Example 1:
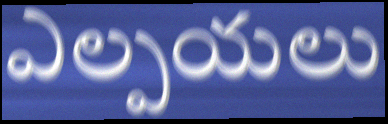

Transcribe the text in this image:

ఎల్పయలు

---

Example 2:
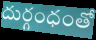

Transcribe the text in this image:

దుర్గంధంతో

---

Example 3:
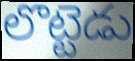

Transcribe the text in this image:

లొట్టెడు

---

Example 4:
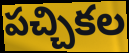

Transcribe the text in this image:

పచ్చికల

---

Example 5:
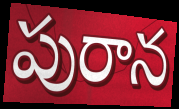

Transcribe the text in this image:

పురాన